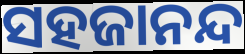
ସହଜାନନ୍ଦ